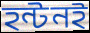
হন্টনই